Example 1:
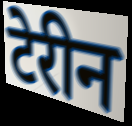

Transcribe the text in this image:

टेरीन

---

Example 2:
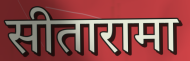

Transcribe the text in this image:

सीतारामा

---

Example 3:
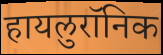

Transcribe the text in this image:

हायलुरॉनिक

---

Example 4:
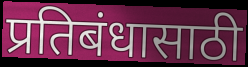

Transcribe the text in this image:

प्रतिबंधासाठी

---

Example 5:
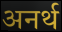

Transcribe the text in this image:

अनर्थ